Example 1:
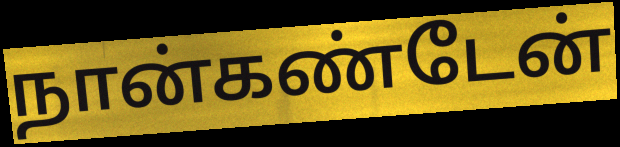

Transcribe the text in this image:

நான்கண்டேன்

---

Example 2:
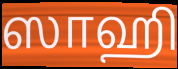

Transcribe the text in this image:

ஸாஹி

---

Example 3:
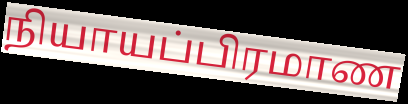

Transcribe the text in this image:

நியாயப்பிரமாண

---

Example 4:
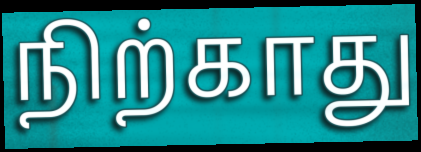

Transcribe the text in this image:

நிற்காது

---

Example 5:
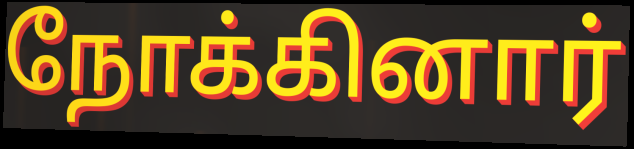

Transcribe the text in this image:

நோக்கினார்